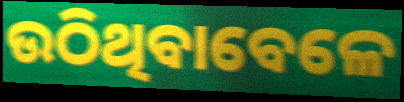
ଉଠିଥିବାବେଳେ